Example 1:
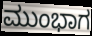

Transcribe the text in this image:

ಮುಂಭಾಗ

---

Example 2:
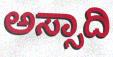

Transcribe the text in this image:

ಅಸ್ಸಾದಿ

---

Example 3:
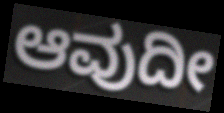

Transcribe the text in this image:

ಆವುದೀ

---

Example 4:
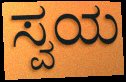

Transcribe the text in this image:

ಸ್ವಯ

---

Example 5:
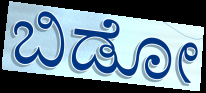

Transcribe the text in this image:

ಬಿಡೋ